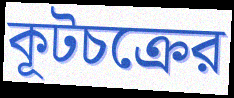
কূটচক্রের